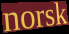
norsk